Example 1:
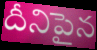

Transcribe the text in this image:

దీనిపైన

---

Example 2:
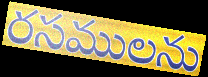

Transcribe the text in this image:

రసములను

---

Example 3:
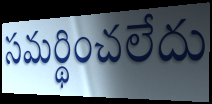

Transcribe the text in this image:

సమర్థించలేదు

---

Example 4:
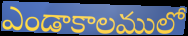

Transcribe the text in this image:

ఎండాకాలములో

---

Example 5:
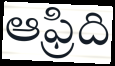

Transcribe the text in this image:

ఆఫ్రిది